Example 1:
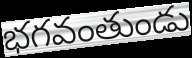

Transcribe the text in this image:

భగవంతుండు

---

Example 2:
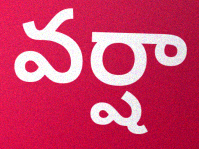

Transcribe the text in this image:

వర్షా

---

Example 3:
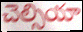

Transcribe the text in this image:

చెల్సియా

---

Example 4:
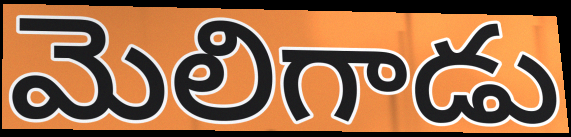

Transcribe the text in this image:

మెలిగాడు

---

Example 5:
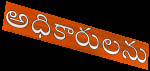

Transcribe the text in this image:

అధికారులను